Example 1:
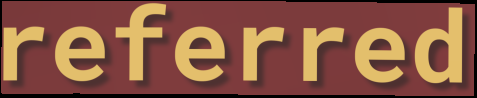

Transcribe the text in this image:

referred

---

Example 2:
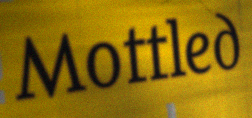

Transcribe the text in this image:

Mottled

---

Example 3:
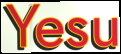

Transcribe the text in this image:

Yesu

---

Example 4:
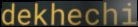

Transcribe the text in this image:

dekhechi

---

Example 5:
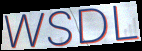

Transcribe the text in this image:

WSDL